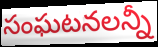
సంఘటనలన్నీ